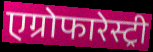
एग्रोफारेस्ट्री